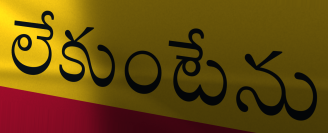
లేకుంటేను